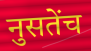
नुसतेंच